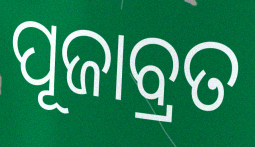
ପୂଜାବ୍ରତ